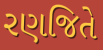
રણજિતે